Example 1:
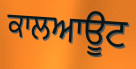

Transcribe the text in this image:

ਕਾਲਆਊਟ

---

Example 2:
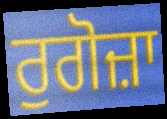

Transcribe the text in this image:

ਰੁਗੋਜ਼ਾ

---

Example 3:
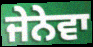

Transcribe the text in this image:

ਜੇਨੇਵਾ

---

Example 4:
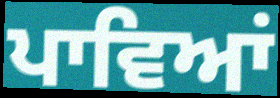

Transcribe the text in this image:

ਪਾਵਿਆਂ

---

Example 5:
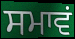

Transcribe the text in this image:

ਸਮਾਵਂ